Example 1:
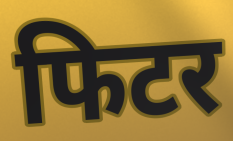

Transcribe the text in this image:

फिटर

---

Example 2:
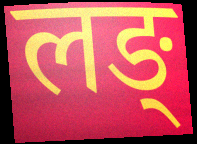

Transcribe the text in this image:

लङ्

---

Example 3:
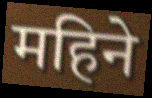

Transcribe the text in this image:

महिने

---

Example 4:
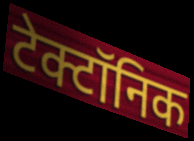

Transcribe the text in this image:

टेक्टॉनिक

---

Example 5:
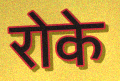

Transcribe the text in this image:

रोके